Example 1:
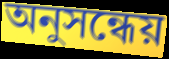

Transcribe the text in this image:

অনুসন্ধেয়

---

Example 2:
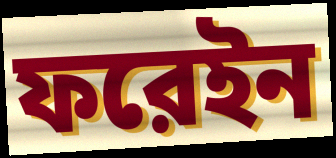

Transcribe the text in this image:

ফরেইন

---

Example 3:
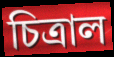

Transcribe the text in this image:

চিত্রাল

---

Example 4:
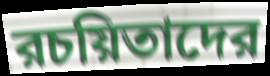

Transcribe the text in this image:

রচয়িতাদের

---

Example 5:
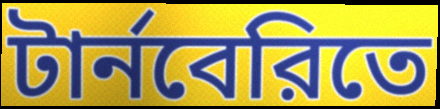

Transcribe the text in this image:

টার্নবেরিতে